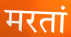
मरतां